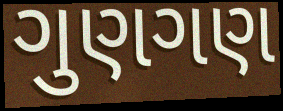
ગુણગણ